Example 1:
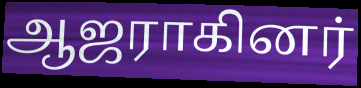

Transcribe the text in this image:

ஆஜராகினர்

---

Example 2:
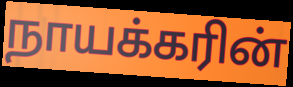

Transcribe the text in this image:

நாயக்கரின்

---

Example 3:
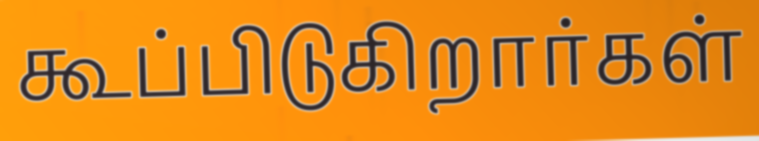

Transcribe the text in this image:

கூப்பிடுகிறார்கள்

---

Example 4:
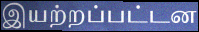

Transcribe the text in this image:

இயற்றப்பட்டன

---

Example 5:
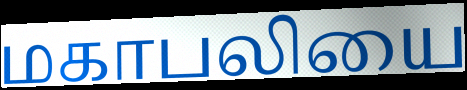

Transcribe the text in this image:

மகாபலியை